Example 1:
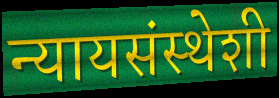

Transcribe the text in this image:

न्यायसंस्थेशी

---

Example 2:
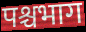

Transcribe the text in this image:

पश्चभाग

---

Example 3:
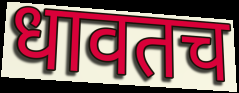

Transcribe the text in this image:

धावतच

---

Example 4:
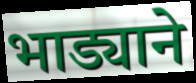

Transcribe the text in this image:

भाड्याने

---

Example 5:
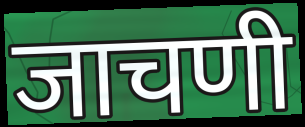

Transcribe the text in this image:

जाचणी